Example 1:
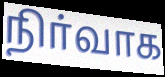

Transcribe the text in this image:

நிர்வாக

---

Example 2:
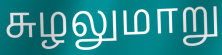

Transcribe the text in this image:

சுழலுமாறு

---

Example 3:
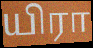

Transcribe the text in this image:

யிரா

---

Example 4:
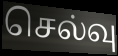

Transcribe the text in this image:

செல்வு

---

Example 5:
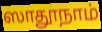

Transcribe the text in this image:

ஸாதூநாம்